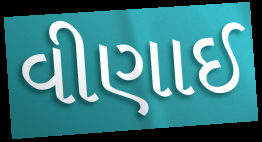
વીણાઈ